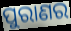
ପୁରାଣର